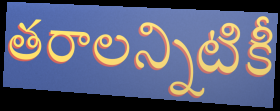
తరాలన్నిటికీ